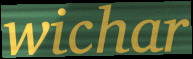
wichar